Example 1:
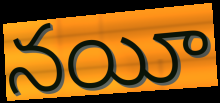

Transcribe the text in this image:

నయీ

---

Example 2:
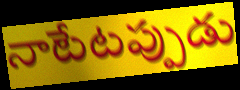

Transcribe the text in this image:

నాటేటప్పుడు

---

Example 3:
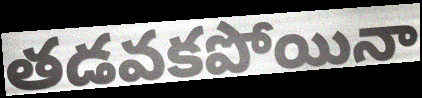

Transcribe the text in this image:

తడవకపోయినా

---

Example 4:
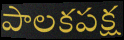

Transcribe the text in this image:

పాలకపక్ష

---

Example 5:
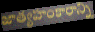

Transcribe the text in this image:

జాత్యహంకారాన్ని